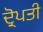
ਦ੍ਰੋਪਤੀ